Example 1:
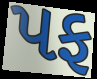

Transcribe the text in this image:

પફ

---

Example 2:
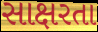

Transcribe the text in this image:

સાક્ષરતા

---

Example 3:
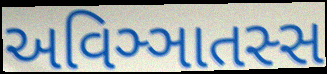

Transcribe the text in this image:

અવિઞ્ઞાતસ્સ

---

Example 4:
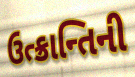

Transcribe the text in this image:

ઉત્ક્રાન્તિની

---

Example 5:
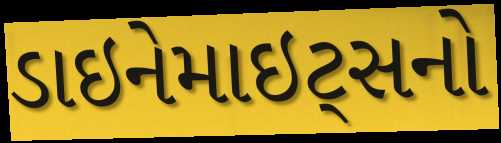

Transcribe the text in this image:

ડાઇનેમાઇટ્સનો